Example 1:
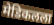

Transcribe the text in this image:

मेडिकलला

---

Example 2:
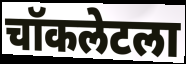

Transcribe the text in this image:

चॉकलेटला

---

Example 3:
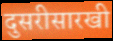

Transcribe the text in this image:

दुसरीसारखी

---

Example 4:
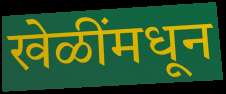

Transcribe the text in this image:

खेळींमधून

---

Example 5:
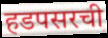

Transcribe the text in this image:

हडपसरची